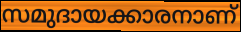
സമുദായക്കാരനാണ്